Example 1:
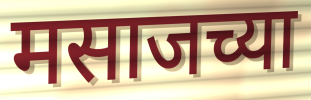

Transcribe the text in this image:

मसाजच्या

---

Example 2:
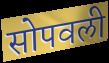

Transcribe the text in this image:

सोपवली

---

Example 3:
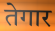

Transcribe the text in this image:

तेगार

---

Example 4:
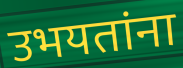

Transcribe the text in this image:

उभयतांना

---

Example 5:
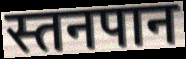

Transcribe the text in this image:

स्तनपान